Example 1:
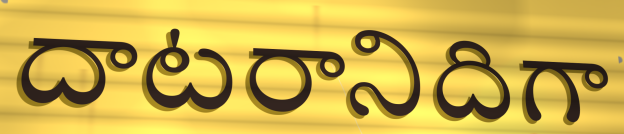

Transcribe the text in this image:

దాటరానిదిగా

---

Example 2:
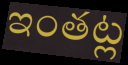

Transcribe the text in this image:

ఇంతట్ల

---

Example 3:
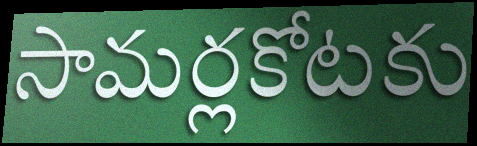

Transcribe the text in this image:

సామర్లకోటకు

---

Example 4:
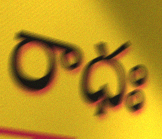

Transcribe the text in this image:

రాధః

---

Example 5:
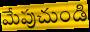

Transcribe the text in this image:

మేపుచుండి